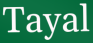
Tayal